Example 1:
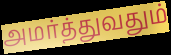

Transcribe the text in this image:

அமர்த்துவதும்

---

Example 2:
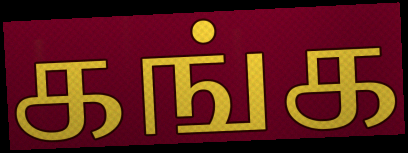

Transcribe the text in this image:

கங்க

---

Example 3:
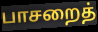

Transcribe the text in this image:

பாசறைத்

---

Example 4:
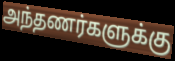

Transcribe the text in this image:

அந்தணர்களுக்கு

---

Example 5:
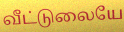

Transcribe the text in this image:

வீட்டுலையே